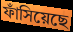
ফাঁসিয়েছে